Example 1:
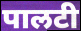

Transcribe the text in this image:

पालटी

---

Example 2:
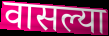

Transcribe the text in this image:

वासल्या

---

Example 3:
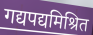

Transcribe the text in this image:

गद्यपद्यमिश्रित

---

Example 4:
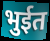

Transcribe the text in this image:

भुईत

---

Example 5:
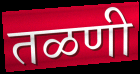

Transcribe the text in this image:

तळणी